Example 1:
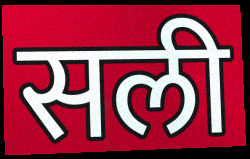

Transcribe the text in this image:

सली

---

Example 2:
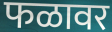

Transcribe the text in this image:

फळावर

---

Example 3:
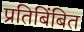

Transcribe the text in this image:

प्रतिबिंबित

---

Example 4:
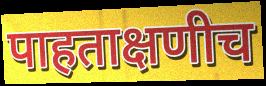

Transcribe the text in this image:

पाहताक्षणीच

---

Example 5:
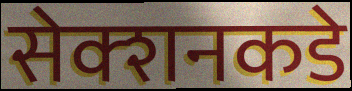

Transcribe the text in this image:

सेक्शनकडे